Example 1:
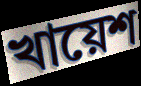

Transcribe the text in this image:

খায়েশ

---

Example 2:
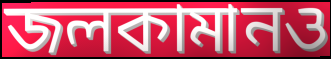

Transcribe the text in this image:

জলকামানও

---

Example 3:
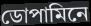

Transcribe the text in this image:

ডোপামিনে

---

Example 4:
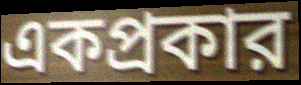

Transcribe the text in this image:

একপ্রকার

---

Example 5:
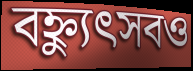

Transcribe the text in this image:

বহ্ন্যুৎসবও